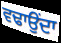
ਵਢਾਉਂਦਾ